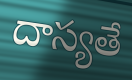
దాస్యతే